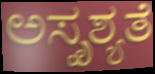
ಅಸ್ಪೃಶ್ಯತೆ